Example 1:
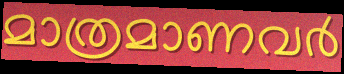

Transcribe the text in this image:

മാത്രമാണവർ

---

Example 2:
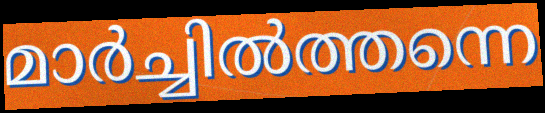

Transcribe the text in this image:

മാർച്ചിൽത്തന്നെ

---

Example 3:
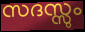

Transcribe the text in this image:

സദസ്സും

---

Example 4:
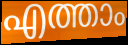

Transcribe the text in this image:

എത്താം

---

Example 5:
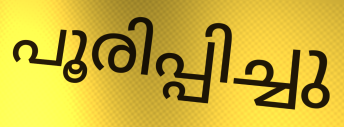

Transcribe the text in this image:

പൂരിപ്പിച്ചു